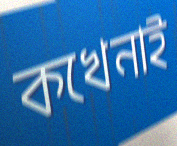
কখেনাই